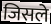
जिसले